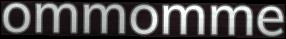
ommomme